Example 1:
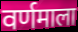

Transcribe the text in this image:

वर्णमाला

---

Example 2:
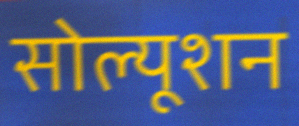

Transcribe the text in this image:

सोल्‍यूशन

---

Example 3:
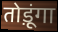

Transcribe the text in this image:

तोड़ूंगा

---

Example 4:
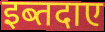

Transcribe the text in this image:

इब्तदाए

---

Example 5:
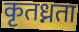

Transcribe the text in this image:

कृतध्नता